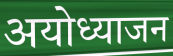
अयोध्याजन